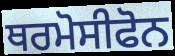
ਥਰਮੋਸੀਫੋਨ